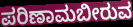
ಪರಿಣಾಮಬೀರುವ